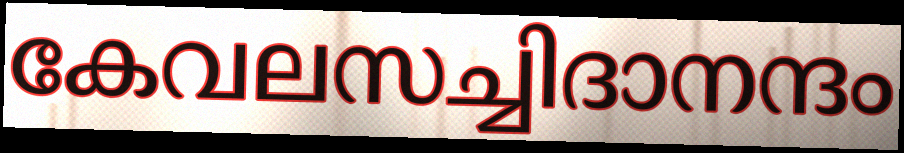
കേവലസച്ചിദാനന്ദം